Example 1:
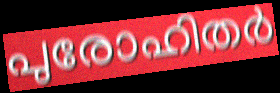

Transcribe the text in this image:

പുരോഹിതർ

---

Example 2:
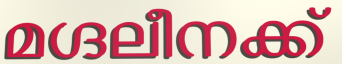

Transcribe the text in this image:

മഗ്ദലീനക്ക്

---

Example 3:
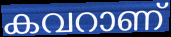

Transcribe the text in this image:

കവറാണ്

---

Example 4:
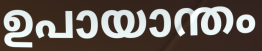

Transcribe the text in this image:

ഉപായാന്തം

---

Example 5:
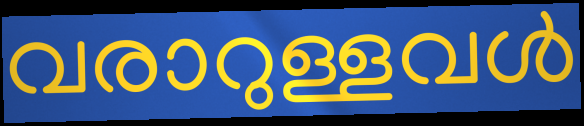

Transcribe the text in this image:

വരാറുള്ളവൾ